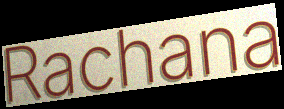
Rachana